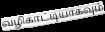
வழிகாட்டியாகவும்